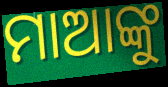
ମାଆଙ୍କୁ